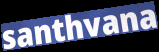
santhvana